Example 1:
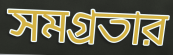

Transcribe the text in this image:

সমগ্রতার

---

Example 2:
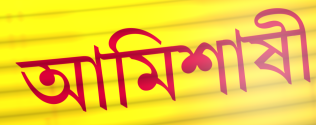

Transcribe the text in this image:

আমিশাষী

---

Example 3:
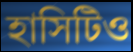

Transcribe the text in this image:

হাসিটিও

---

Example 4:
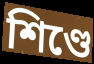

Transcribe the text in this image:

শিণ্ডে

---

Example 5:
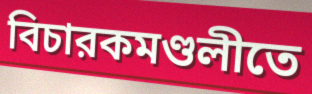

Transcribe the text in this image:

বিচারকমণ্ডলীতে